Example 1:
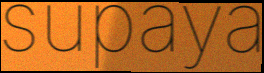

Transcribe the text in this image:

supaya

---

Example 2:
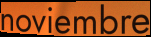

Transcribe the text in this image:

noviembre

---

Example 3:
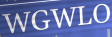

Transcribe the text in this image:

WGWLO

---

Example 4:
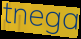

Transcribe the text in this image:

tnega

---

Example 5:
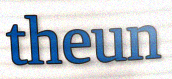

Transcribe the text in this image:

theun